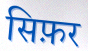
सिफ़र